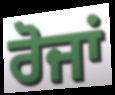
ਰੋਜਾਂ